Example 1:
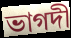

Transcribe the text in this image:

ভাগদী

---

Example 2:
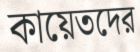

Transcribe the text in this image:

কায়েতদের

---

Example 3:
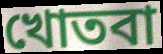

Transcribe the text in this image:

খোতবা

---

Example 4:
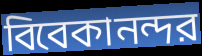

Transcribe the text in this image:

বিবেকানন্দর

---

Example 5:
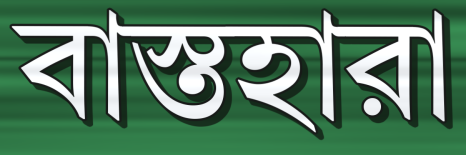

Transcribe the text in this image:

বাস্তহারা